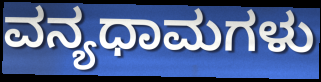
ವನ್ಯಧಾಮಗಳು